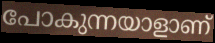
പോകുന്നയാളാണ്